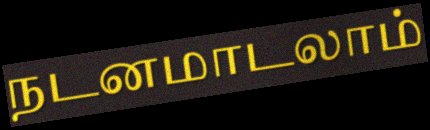
நடனமாடலாம்